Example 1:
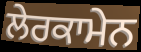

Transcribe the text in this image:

ਲੇਰਕਾਮੇਨ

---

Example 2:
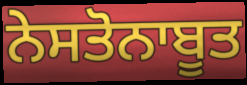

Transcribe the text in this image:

ਨੇਸਤੋਨਾਬੂਤ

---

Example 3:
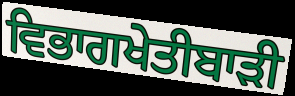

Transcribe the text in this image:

ਵਿਭਾਗਖੇਤੀਬਾੜੀ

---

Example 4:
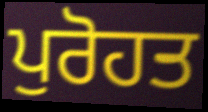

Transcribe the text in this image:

ਪੁਰੋਹਤ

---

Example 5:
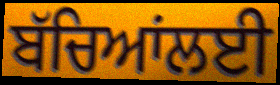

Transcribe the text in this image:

ਬੱਚਿਆਂਲਈ